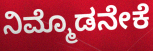
ನಿಮ್ಮೊಡನೇಕೆ